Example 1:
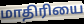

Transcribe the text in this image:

மாதிரியை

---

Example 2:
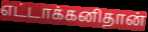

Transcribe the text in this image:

எட்டாக்கனிதான்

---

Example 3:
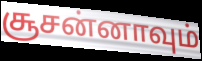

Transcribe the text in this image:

சூசன்னாவும்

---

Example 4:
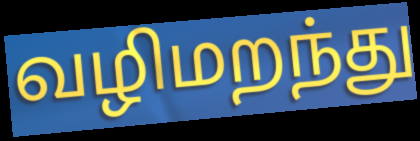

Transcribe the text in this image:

வழிமறந்து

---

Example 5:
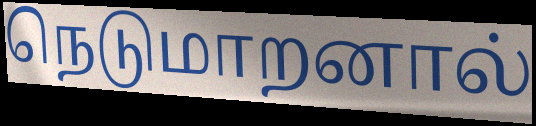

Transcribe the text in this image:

நெடுமாறனால்